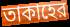
তাকাহের